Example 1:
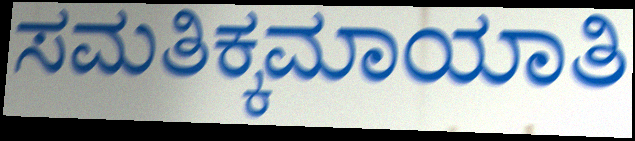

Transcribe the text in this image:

ಸಮತಿಕ್ಕಮಾಯಾತಿ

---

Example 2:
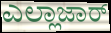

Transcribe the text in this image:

ಎಲ್ಲಾಜಾರ್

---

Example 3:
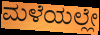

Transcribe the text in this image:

ಮಳೆಯಲ್ಲೇ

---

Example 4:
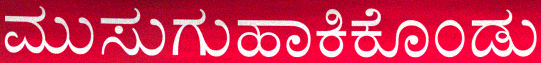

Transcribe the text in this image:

ಮುಸುಗುಹಾಕಿಕೊಂಡು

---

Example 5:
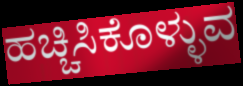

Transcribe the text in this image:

ಹಚ್ಚಿಸಿಕೊಳ್ಳುವ